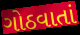
ગોઠવાતાં